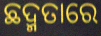
ଛଦ୍ମତାରେ